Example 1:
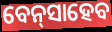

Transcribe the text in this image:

ବେନ୍‌ସାହେବ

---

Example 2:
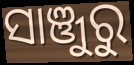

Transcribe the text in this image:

ସାଞ୍ଜୁରୁ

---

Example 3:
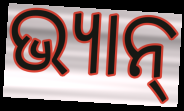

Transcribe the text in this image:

ଭ୍ୟାନ୍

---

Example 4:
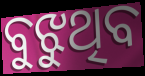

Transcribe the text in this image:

ବୁଝୁଥିବ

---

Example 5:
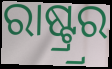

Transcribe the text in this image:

ରାଷ୍ଟ୍ର୍ରର